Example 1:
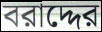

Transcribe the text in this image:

বরাদ্দের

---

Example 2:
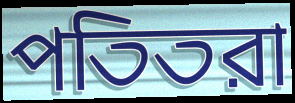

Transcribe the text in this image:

পতিতরা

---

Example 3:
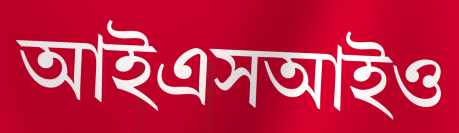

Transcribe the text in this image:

আইএসআইও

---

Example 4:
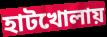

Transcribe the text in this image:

হাটখোলায়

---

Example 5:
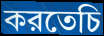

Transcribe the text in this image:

করতেচি